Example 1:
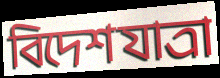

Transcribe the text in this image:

বিদেশযাত্রা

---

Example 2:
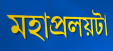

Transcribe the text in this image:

মহাপ্রলয়টা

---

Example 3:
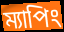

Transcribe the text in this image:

ম্যাপিং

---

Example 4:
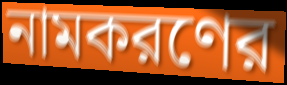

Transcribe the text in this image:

নামকরণের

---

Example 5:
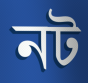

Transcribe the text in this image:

নট